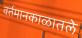
वर्तमानकाळातले